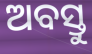
ଅବସ୍ତୁ